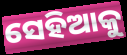
ସେହିଆକୁ